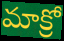
మాక్రో